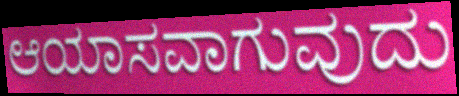
ಆಯಾಸವಾಗುವುದು